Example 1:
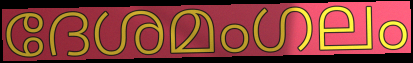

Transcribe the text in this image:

ദേശമംഗലം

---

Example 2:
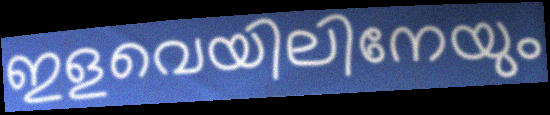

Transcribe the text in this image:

ഇളവെയിലിനേയും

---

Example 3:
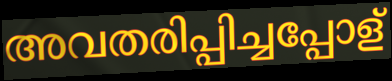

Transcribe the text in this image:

അവതരിപ്പിച്ചപ്പോള്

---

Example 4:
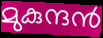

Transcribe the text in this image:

മുകുന്ദൻ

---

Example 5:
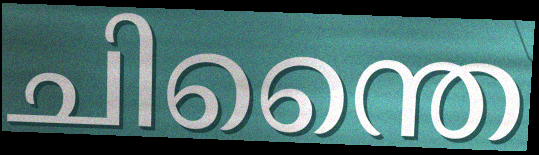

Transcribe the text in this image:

ചിന്തൈ